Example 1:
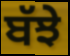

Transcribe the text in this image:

ਬੱਝੇ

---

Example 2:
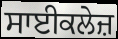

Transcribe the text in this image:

ਸਾਈਕਲੇਜ਼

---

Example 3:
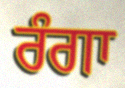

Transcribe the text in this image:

ਰੰਗਾ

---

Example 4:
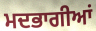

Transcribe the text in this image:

ਮਦਭਾਗੀਆਂ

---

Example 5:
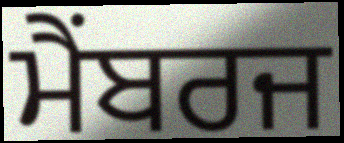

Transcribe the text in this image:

ਮੈਂਬਰਜ